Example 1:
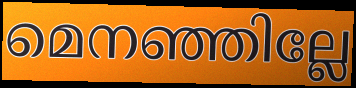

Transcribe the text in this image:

മെനഞ്ഞില്ലേ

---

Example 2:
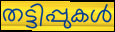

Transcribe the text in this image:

തട്ടിപ്പുകൾ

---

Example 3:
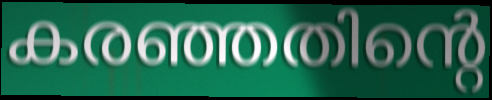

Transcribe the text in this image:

കരഞ്ഞതിന്റെ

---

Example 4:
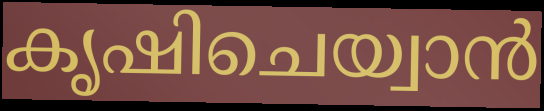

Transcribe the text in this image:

കൃഷിചെയ്വാൻ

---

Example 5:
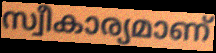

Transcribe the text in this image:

സ്വീകാര്യമാണ്